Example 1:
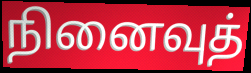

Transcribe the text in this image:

நினைவுத்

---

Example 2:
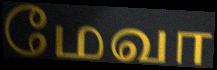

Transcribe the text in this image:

மேவா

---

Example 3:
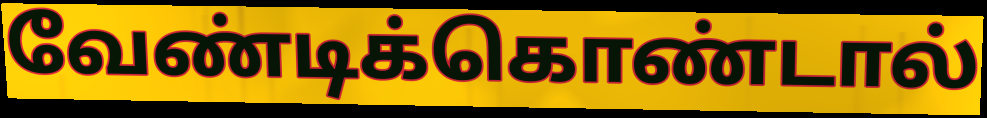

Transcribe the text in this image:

வேண்டிக்கொண்டால்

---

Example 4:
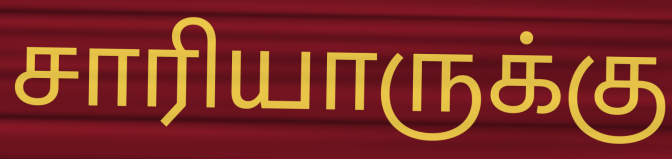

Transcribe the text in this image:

சாரியாருக்கு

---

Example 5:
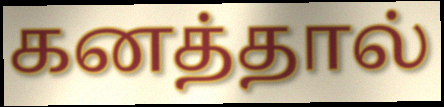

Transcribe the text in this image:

கனத்தால்